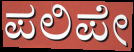
ಪಲಿಪೇ